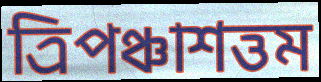
ত্রিপঞ্চাশত্তম